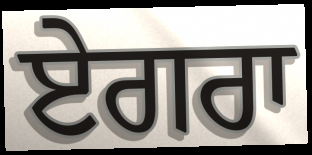
ਏਗਰਾ